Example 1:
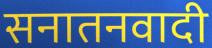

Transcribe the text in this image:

सनातनवादी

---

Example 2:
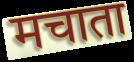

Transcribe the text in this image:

मचाता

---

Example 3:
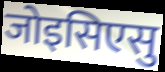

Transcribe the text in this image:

जोइसिएसु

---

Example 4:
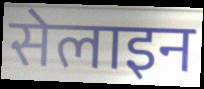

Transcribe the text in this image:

सेलाइन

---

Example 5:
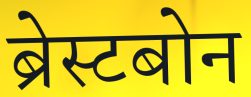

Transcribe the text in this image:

ब्रेस्टबोन